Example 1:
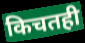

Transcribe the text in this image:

किचतही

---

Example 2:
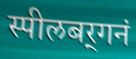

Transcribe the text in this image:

स्पीलबर्गनं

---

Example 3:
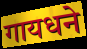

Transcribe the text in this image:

गायधने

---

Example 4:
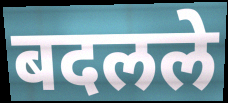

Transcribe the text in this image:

बदलले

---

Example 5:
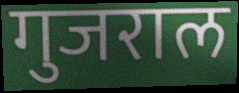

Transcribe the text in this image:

गुजराल